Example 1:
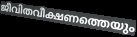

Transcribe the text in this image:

ജീവിതവീക്ഷണത്തെയും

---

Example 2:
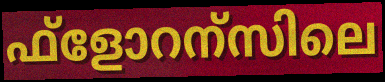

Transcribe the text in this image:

ഫ്ളോറന്സിലെ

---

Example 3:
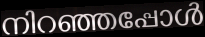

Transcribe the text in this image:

നിറഞ്ഞപ്പോൾ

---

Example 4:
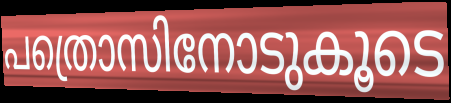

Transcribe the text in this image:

പത്രൊസിനോടുകൂടെ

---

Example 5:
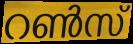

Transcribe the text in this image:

റൺസ്